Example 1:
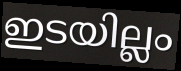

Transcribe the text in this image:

ഇടയില്ലം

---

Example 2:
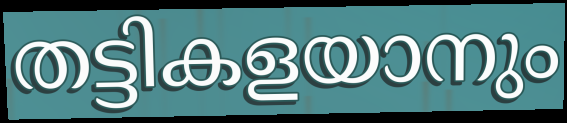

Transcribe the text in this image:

തട്ടികളയാനും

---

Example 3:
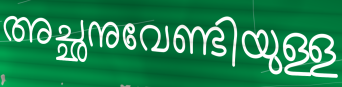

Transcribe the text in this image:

അച്ഛനുവേണ്ടിയുള്ള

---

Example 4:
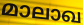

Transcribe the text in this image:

മാലാഖ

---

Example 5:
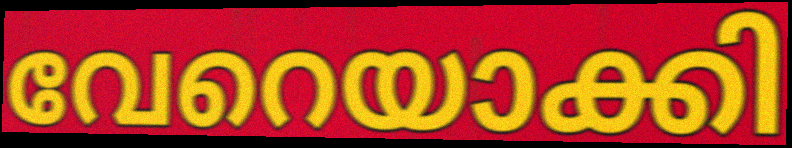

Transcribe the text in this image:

വേറെയാക്കി